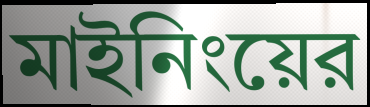
মাইনিংয়ের